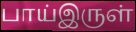
பாய்இருள்